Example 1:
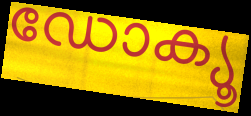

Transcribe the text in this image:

ഡോക്യൂ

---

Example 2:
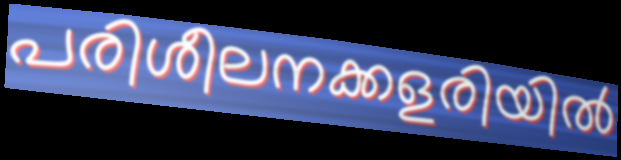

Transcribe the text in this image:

പരിശീലനക്കളരിയിൽ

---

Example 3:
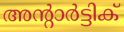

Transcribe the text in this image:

അന്റാർട്ടിക്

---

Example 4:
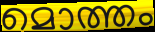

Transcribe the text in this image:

മൊത്തം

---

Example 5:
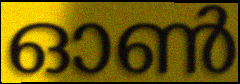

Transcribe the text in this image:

ഓൺ